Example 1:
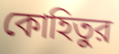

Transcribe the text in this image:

কোহিতুর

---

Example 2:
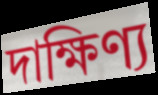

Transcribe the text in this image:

দাক্ষিণ্য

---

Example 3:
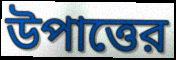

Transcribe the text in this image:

উপাত্তের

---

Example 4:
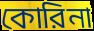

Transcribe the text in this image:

কোরিনা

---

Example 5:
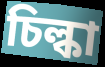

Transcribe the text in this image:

চিল্কা